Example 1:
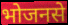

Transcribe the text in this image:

भोजनसे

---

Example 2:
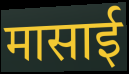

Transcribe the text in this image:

मासाई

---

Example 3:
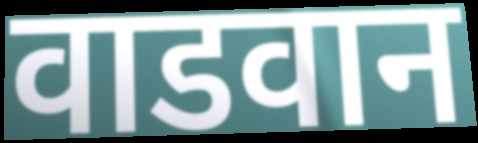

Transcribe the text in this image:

वाडवान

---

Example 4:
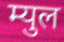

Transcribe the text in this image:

म्युल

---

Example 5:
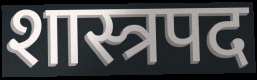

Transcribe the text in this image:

शास्त्रपद